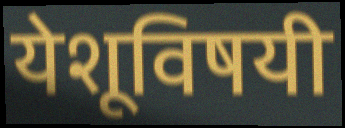
येशूविषयी